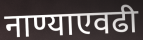
नाण्याएवढी